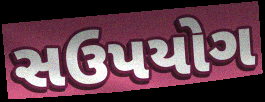
સઉપયોગ